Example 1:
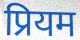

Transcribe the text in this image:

प्रियम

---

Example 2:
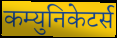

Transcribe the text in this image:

कम्युनिकेटर्स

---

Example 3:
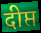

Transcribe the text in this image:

दीप्त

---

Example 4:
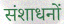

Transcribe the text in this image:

संशाधनों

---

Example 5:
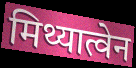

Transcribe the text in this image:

मिथ्यात्वेन